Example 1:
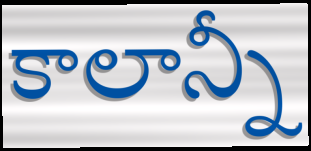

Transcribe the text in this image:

కాలాన్నీ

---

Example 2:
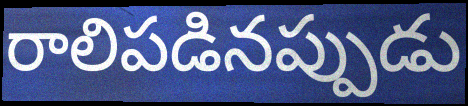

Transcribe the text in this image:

రాలిపడినప్పుడు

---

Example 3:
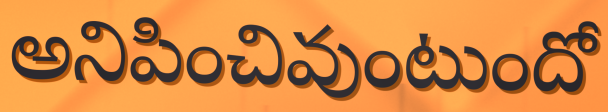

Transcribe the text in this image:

అనిపించివుంటుందో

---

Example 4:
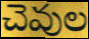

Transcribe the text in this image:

చెవుల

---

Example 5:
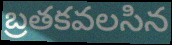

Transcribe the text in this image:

బ్రతకవలసిన